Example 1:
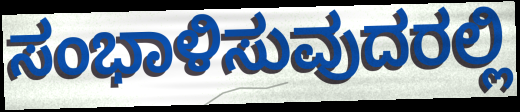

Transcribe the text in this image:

ಸಂಭಾಳಿಸುವುದರಲ್ಲಿ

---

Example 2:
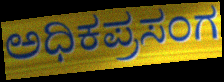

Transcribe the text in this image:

ಅಧಿಕಪ್ರಸಂಗ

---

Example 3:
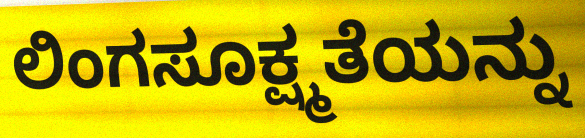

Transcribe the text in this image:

ಲಿಂಗಸೂಕ್ಷ್ಮತೆಯನ್ನು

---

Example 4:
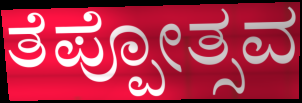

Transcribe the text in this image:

ತೆಪ್ಪೋತ್ಸವ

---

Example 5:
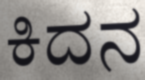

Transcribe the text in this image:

ಕಿದನ